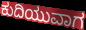
ಕುದಿಯುವಾಗ